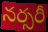
నర్సరీ